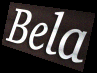
Bela